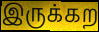
இருக்கற